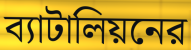
ব্যাটালিয়নের